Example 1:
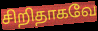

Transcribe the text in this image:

சிறிதாகவே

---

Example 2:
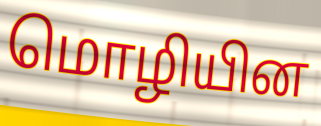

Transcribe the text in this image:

மொழியின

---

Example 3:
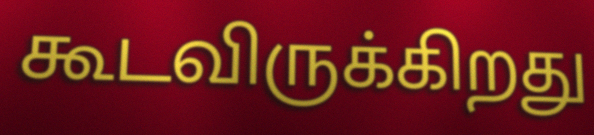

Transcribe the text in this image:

கூடவிருக்கிறது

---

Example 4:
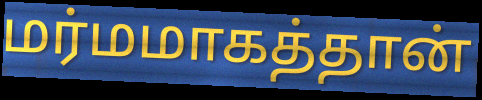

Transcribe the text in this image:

மர்மமாகத்தான்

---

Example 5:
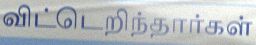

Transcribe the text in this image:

விட்டெறிந்தார்கள்